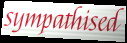
sympathised